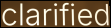
clarified